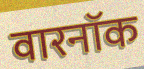
वारनॉक